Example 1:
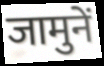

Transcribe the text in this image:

जामुनें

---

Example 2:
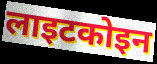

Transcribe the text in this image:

लाइटकोइन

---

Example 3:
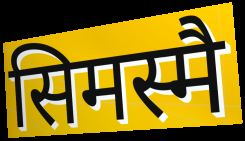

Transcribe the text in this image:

सिमस्मै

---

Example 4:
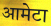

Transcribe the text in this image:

आमेटा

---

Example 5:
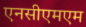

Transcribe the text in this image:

एनसीएमएम